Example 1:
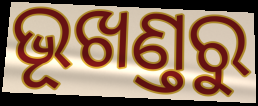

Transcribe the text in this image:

ଭୂଖଣ୍ତରୁ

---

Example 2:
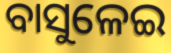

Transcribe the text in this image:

ବାସୁଳେଇ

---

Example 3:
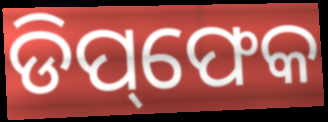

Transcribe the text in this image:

ଡିପ୍‌ଫେକ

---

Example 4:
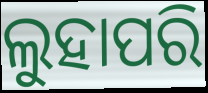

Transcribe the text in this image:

ଲୁହାପରି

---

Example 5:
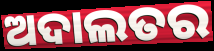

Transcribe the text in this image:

ଅଦାଲତର